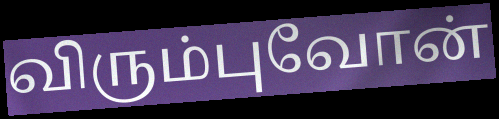
விரும்புவோன்